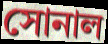
সোনাল